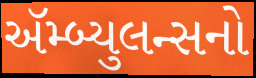
ઍમ્બ્યુલન્સનો